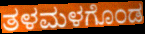
ತಳಮಳಗೊಂಡ